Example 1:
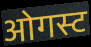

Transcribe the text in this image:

ओगस्ट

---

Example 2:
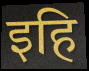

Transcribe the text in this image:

इहि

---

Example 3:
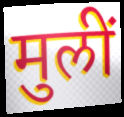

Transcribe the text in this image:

मुलीं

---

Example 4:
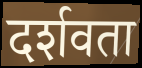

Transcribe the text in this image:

दर्शवता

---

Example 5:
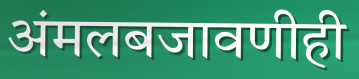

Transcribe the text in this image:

अंमलबजावणीही